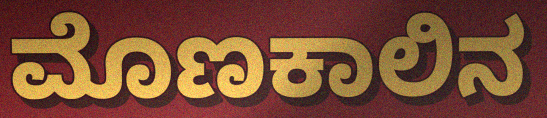
ಮೊಣಕಾಲಿನ